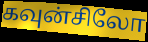
கவுன்சிலோ